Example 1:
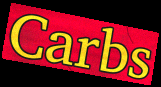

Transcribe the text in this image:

Carbs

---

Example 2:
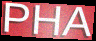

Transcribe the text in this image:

PHA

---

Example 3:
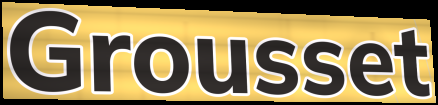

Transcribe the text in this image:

Grousset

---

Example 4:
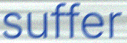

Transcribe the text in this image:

suffer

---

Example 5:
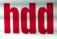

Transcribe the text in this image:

hdd